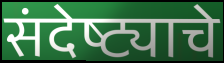
संदेष्ट्याचे